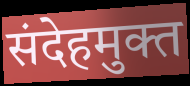
संदेहमुक्त